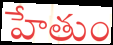
హేతుం